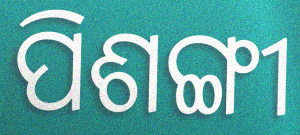
ପିଶଙ୍ଗୀ